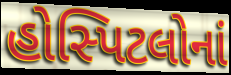
હોસ્પિટલોનાં